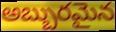
అబ్బురమైన